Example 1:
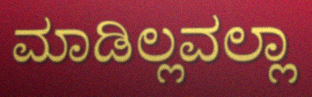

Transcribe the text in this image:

ಮಾಡಿಲ್ಲವಲ್ಲಾ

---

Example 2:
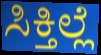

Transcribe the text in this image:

ಸಿಕ್ತಿಲ್ಲೆ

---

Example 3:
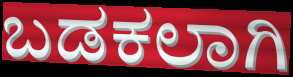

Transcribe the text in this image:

ಬಡಕಲಾಗಿ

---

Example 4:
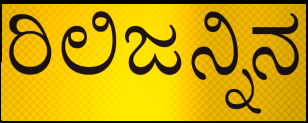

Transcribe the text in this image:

ರಿಲಿಜನ್ನಿನ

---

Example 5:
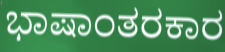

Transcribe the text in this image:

ಭಾಷಾಂತರಕಾರ